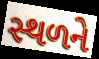
સ્‍થળને